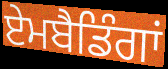
ਏਮਬੈਡਿੰਗਾਂ